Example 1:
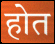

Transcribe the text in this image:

होत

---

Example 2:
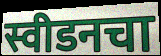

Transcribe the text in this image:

स्वीडनचा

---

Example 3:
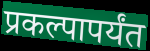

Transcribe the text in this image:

प्रकल्पापर्यंत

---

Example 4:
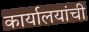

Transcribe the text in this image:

कार्यालयांची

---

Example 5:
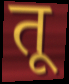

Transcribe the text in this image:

तू